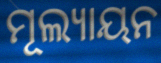
ମୂଲ୍ୟାୟନ